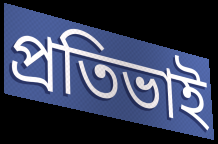
প্ৰতিভাই